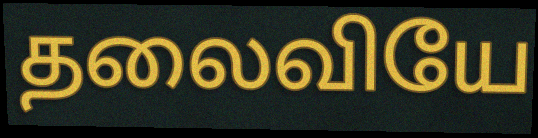
தலைவியே